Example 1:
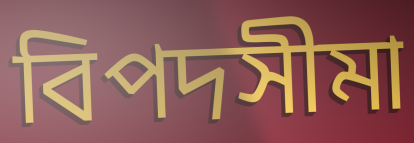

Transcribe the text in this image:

বিপদসীমা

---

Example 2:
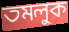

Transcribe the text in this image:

তমলুক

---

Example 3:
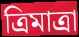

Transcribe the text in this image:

ত্রিমাত্রা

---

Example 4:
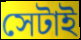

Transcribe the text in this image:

সেটাই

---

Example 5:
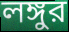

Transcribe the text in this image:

লঙ্গুর